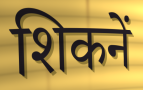
शिकनें